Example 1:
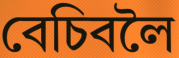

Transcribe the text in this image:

বেচিবলৈ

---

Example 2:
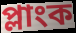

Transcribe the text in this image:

প্লাংক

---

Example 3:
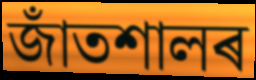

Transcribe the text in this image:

জাঁতশালৰ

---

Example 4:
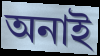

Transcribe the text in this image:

অনাই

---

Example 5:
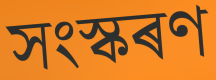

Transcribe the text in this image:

সংস্কৰণ